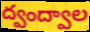
ద్వంద్వాల